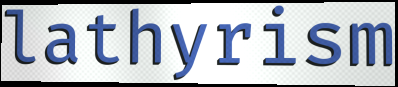
lathyrism